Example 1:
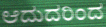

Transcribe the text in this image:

ಆದುದರಿಂದ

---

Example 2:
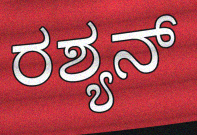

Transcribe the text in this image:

ರಶ್ಯನ್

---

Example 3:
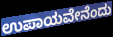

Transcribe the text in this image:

ಉಪಾಯವೇನೆಂದು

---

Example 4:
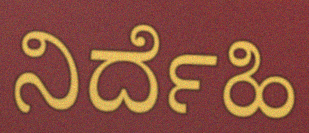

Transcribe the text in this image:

ನಿರ್ದೆಹಿ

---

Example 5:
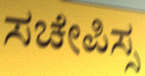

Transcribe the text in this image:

ಸಚೇಪಿಸ್ಸ